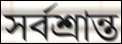
সৰ্বশ্ৰান্ত